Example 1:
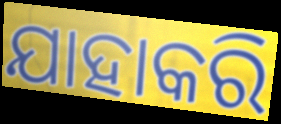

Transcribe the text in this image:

ଯାହାକରି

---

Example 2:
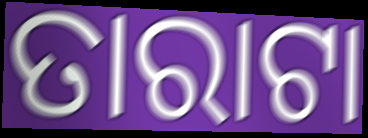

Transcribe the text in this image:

ତାରାଟା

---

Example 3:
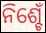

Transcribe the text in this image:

ନିଶ୍ଚେଁ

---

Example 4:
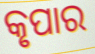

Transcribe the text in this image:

କୃପାର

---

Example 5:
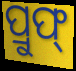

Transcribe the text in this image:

ପ୍ରୁଫ୍